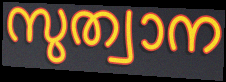
സുത്വാന